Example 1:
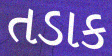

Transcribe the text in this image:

તડાક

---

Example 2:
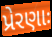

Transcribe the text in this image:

પ્રેરણાઃ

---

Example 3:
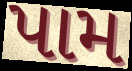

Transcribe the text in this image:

પામ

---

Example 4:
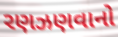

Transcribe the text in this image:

રણઝણવાનો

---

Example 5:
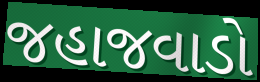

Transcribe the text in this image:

જહાજવાડો